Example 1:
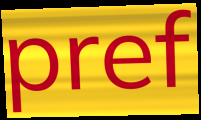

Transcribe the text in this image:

pref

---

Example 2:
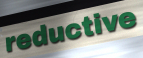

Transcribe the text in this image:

reductive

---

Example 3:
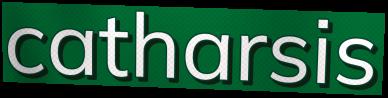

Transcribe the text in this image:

catharsis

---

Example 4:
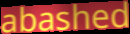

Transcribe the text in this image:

abashed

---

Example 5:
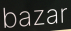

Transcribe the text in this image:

bazar